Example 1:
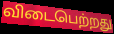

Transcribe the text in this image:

விடைபெற்றது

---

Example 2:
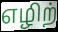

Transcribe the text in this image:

எழிற்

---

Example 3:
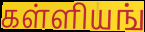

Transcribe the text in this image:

கள்ளியங்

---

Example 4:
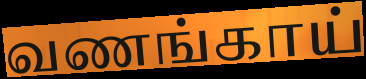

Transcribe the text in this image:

வணங்காய்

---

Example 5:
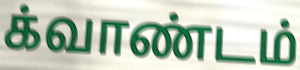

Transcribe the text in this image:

க்வாண்டம்